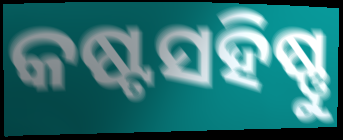
କଷ୍ଟସହିଷ୍ଣୁ